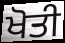
ਖੋਤੀ